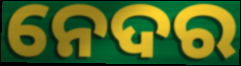
ନେଦର